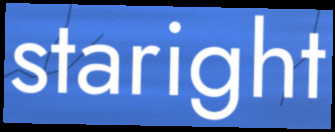
staright